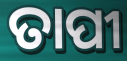
ତାପୀ